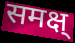
समक्ष्